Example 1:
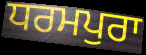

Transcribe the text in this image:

ਧਰਮਪੁਰਾ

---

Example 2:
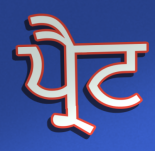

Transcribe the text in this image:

ਪ੍ਰੈਟ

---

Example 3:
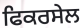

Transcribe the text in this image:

ਫਿਕਰਸੇਲ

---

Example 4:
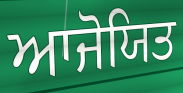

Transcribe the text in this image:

ਆਜੋਯਿਤ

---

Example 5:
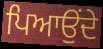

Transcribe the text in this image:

ਪਿਆਉਂਦੇ